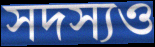
সদস্যও